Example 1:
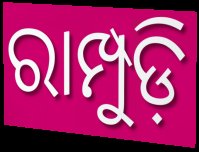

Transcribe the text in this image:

ରାମ୍ପୁଡ଼ି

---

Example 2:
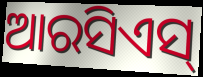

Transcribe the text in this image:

ଆରସିଏସ୍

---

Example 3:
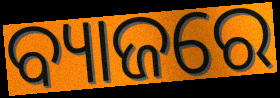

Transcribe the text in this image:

ବ୍ୟାଜରେ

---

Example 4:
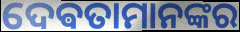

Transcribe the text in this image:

ଦେଵତାମାନଙ୍କର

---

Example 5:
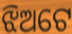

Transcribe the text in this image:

ଝିଅଟେ